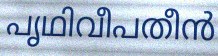
പൃഥിവീപതീൻ